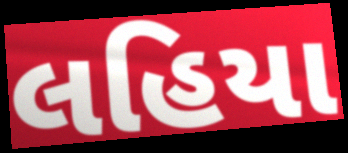
લહિયા